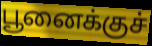
பூனைக்குச்